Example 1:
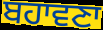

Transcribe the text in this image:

ਬਹਾਵਣਾ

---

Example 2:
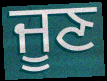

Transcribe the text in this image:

ਜੂਣ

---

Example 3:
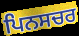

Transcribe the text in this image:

ਪਿਨਸਚਰ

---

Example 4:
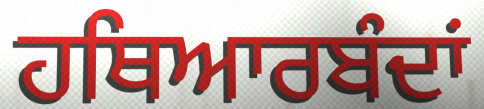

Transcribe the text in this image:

ਹਥਿਆਰਬੰਦਾਂ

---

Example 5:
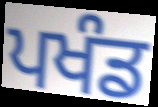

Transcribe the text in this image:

ਪਖੰਡ